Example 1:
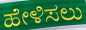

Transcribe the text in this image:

ಹೇಳಿಸಲು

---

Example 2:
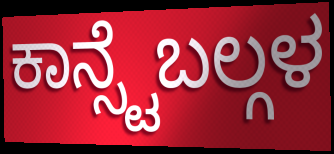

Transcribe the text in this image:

ಕಾನ್ಸ್ಟೆಬಲ್ಗಳ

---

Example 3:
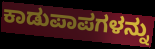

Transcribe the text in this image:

ಕಾಡುಪಾಪಗಳನ್ನು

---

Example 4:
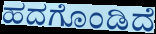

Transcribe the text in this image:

ಹದಗೊಂಡಿದೆ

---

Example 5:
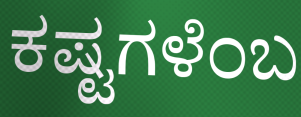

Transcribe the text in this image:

ಕಷ್ಟಗಳೆಂಬ